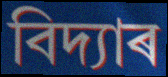
বিদ্য়াৰ